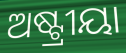
ଅଷ୍ଟ୍ରୀୟା